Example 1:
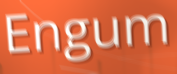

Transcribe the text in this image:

Engum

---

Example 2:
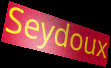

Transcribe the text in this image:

Seydoux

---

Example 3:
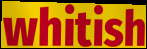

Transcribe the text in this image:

whitish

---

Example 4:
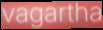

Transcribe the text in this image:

vagartha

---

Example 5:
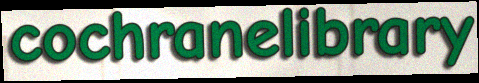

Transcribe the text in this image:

cochranelibrary